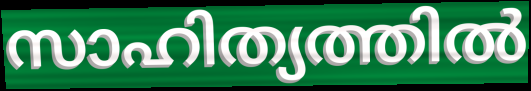
സാഹിത്യത്തിൽ